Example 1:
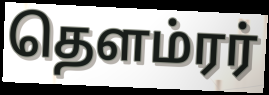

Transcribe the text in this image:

தௌம்ரர்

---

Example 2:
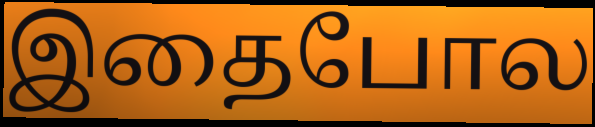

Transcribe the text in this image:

இதைபோல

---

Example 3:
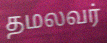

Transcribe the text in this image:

தமலவர்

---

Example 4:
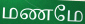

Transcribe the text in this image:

மணமே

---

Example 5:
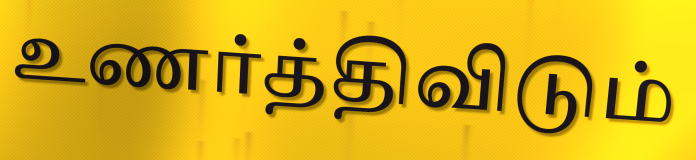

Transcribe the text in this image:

உணர்த்திவிடும்